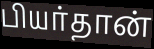
பியர்தான்